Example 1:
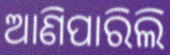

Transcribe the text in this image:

ଆଣିପାରିଲି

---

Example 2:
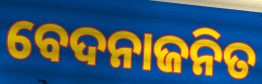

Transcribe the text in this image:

ବେଦନାଜନିତ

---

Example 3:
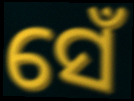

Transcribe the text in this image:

ସେଁ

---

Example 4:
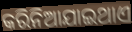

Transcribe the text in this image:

କରିନିଆଯାଇଥାଏ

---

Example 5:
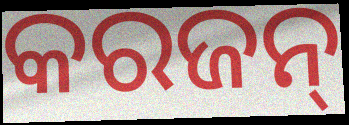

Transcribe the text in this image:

କରଜନ୍